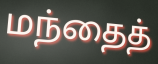
மந்தைத்